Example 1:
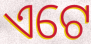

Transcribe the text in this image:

ଏଟେ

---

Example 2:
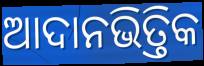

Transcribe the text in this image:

ଆଦାନଭିତ୍ତିକ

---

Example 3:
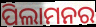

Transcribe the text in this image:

ପିଲାମନର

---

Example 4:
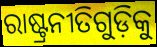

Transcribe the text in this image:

ରାଷ୍ଟ୍ରନୀତିଗୁଡ଼ିକୁ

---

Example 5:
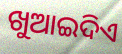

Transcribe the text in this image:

ଖୁଆଇଦିଏ